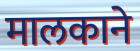
मालकाने